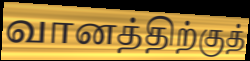
வானத்திற்குத்